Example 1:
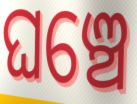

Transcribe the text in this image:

ଘଞ୍ଚେ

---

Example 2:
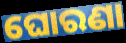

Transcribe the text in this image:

ଘୋରଣା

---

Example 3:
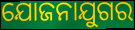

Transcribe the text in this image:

ଯୋଜନାଯୁଗର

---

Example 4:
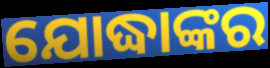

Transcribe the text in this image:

ଯୋଦ୍ଧାଙ୍କର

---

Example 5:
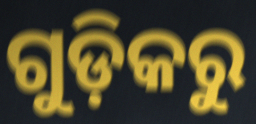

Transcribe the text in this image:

ଗୁଡ଼ିକରୁ